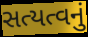
સત્યત્વનું